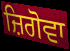
ਜ਼ਿਗੋਵਾ